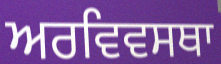
ਅਰਵਿਵਸਥਾ